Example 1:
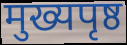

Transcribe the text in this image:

मुख्यपृष्ठ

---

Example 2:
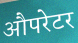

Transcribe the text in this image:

औपरेटर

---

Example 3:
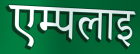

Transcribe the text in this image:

एम्पलाइ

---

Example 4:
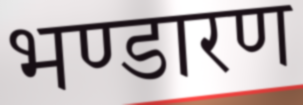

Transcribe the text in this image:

भण्डारण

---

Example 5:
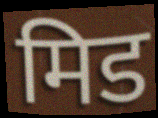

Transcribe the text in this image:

मिड